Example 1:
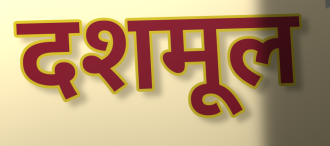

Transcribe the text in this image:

दशमूल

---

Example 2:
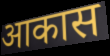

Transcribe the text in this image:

आकास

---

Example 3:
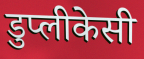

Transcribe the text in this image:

डुप्लीकेसी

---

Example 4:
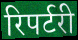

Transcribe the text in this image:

रिपर्टरी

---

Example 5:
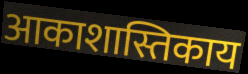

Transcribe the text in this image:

आकाशास्तिकाय